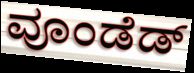
ವೂಂಡೆಡ್